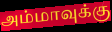
அம்மாவுக்கு